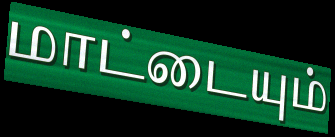
மாட்டையும்